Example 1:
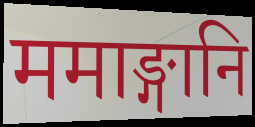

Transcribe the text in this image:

ममाङ्गानि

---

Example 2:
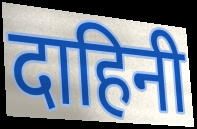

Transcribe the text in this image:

दाहिनी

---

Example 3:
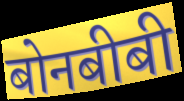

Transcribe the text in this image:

बोनबीबी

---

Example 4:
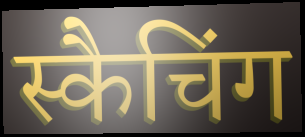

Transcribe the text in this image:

स्कैचिंग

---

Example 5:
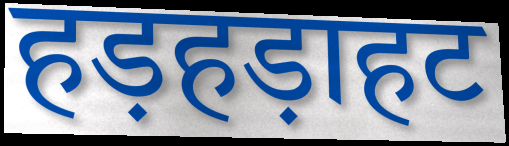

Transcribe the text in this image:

हड़हड़ाहट